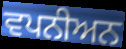
ਵਪਨੀਅਨ